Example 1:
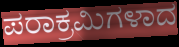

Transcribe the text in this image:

ಪರಾಕ್ರಮಿಗಳಾದ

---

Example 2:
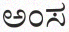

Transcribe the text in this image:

ಅಂಸ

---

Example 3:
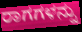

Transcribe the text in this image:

ರಾಗಗಳನ್ನು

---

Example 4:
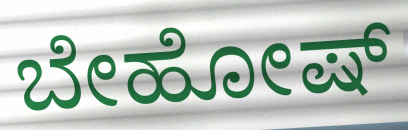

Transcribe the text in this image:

ಬೇಹೋಷ್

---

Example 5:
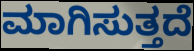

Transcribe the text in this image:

ಮಾಗಿಸುತ್ತದೆ